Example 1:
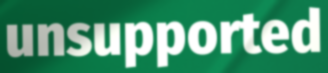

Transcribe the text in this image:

unsupported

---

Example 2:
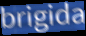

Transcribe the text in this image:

brigida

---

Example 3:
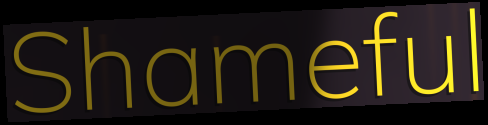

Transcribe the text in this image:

Shameful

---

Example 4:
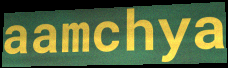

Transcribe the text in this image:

aamchya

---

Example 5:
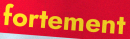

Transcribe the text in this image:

fortement